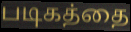
படிகத்தை